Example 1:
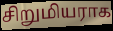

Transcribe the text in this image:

சிறுமியராக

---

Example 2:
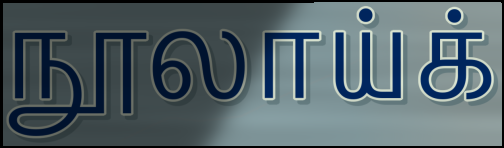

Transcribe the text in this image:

நூலாய்க்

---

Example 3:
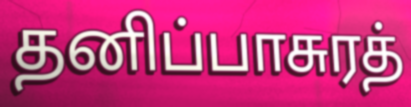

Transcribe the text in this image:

தனிப்பாசுரத்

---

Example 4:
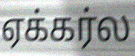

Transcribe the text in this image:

ஏக்கர்ல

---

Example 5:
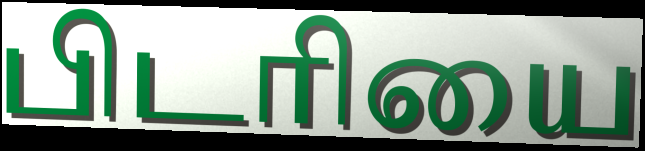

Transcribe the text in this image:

பிடரியை